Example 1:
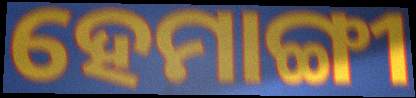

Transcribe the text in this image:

ହେମାଙ୍ଗୀ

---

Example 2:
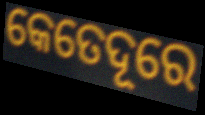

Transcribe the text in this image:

କେତେଦୂରେ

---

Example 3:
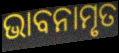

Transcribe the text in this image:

ଭାବନାମୃତ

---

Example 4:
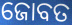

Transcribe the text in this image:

ଜୋବତ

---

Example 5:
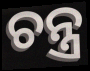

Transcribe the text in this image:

ଚନ୍ତ୍ର